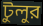
টুলুর